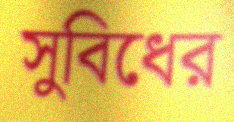
সুবিধের